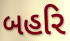
બહરિ